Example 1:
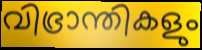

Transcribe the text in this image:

വിഭ്രാന്തികളും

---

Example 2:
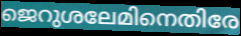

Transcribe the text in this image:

ജെറുശലേമിനെതിരേ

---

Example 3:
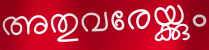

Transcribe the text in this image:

അതുവരേയ്ക്കും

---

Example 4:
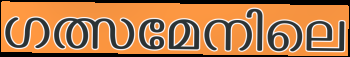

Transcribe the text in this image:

ഗത്സമേനിലെ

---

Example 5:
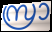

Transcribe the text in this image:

സ്രാ